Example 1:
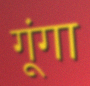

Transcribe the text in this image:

गूंगा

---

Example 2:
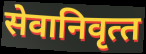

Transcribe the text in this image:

सेवानिवृत्‍त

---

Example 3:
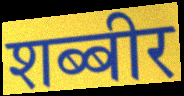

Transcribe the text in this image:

शब्बीर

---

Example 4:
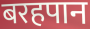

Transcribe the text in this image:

बरहपान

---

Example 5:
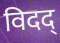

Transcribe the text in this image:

विदद्